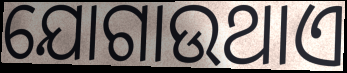
ଯୋଗାଉଥାଏ